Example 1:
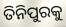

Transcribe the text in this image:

ତିନିପୁରକୁ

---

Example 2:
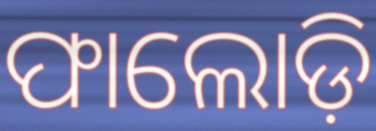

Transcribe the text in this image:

ଫାଲୋଡ଼ି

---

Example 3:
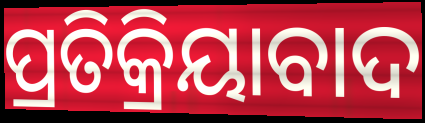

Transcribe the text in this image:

ପ୍ରତିକ୍ରିୟାବାଦ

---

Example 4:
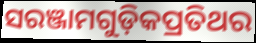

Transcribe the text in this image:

ସରଞ୍ଜାମଗୁଡ଼ିକପ୍ରତିଥର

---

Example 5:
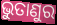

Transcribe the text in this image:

ଭୁତାଣୁର